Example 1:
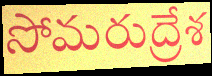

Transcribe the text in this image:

సోమరుద్రేశ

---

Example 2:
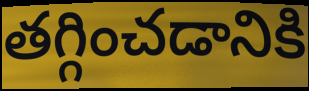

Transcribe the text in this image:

తగ్గించడానికి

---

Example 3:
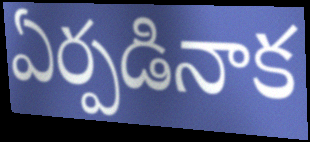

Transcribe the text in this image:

ఏర్పడినాక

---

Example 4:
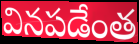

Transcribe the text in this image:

వినపడేంత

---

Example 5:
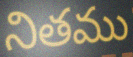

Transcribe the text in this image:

నితము